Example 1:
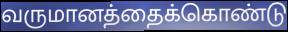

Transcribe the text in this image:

வருமானத்தைக்கொண்டு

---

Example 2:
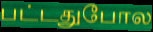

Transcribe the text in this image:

பட்டதுபோல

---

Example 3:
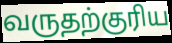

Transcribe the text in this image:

வருதற்குரிய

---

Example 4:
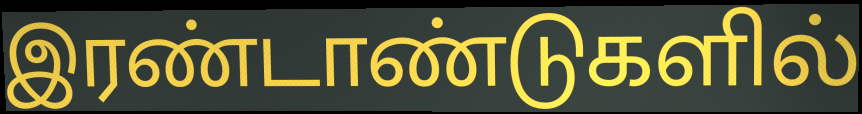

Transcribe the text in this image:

இரண்டாண்டுகளில்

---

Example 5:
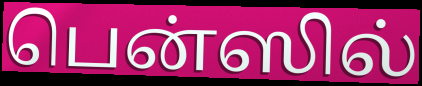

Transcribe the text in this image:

பென்ஸில்